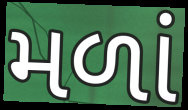
મળાં